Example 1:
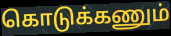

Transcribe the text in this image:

கொடுக்கணும்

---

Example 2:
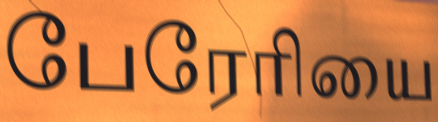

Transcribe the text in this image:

பேரேரியை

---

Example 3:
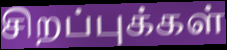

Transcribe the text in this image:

சிறப்புக்கள்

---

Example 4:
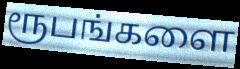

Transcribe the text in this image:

ரூபங்களை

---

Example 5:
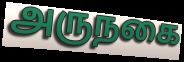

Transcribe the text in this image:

அருநகை